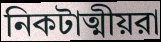
নিকটাত্মীয়রা